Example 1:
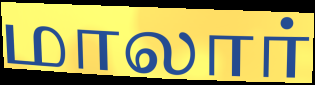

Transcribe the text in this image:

மாலார்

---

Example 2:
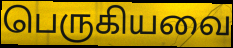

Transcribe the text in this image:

பெருகியவை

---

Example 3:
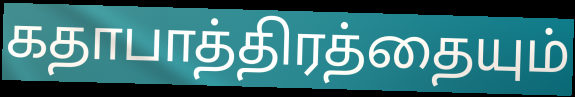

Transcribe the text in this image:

கதாபாத்திரத்தையும்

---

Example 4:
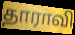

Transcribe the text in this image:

தாராவி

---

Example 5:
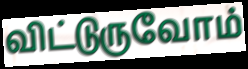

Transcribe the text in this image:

விட்டுருவோம்